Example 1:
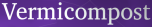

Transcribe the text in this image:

Vermicompost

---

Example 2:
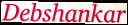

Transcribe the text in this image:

Debshankar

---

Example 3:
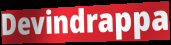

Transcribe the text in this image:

Devindrappa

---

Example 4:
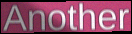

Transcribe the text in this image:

Another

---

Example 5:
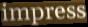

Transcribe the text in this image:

impress